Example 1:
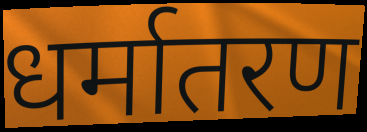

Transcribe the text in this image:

धर्मातरण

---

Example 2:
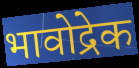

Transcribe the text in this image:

भावोद्रेक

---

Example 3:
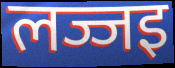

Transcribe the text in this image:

लज्जइ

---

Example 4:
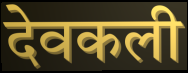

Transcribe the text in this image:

देवकली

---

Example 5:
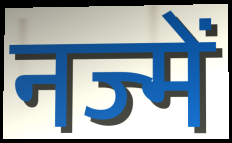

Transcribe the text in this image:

नज्में